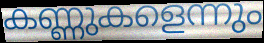
കണ്ണുകളെന്നും